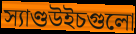
স্যাণ্ডউইচগুলো